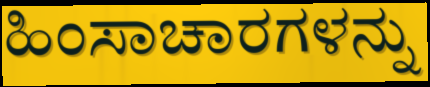
ಹಿಂಸಾಚಾರಗಳನ್ನು